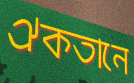
ঐকতানে